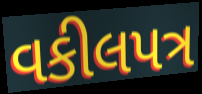
વકીલપત્ર